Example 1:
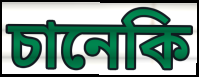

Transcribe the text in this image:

চানেকি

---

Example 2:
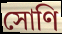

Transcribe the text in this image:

সোণি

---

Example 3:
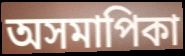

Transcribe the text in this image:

অসমাপিকা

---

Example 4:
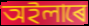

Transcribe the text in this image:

অইলাৰে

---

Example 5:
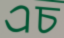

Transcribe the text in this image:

এচ